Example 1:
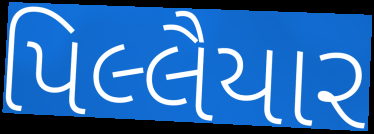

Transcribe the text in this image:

પિલ્લૈયાર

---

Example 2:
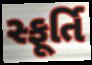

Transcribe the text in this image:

સ્ફૂર્તિ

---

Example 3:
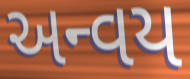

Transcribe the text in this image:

અન્વય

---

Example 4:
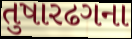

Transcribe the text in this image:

તુષારઢગના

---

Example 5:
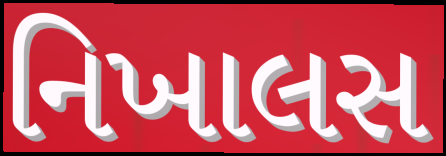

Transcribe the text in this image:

નિખાલસ